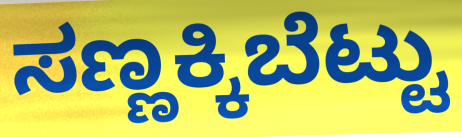
ಸಣ್ಣಕ್ಕಿಬೆಟ್ಟು